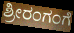
ಶ್ರೀರಂಗಂಗೆ